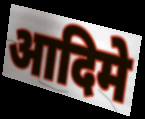
आदिमे